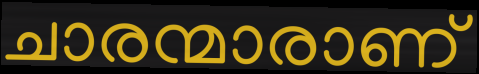
ചാരന്മാരാണ്